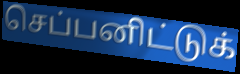
செப்பனிட்டுக்